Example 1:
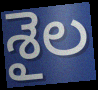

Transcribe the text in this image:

శైల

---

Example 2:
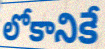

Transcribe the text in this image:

లోకానికే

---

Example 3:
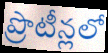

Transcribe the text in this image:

ప్రొటీన్లలో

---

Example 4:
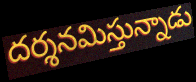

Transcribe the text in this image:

దర్శనమిస్తున్నాడు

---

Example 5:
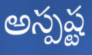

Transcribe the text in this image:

అస్పష్ట